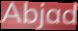
Abjad